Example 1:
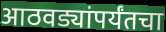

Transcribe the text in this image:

आठवड्यांपर्यंतचा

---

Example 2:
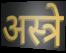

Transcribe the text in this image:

अस्त्रे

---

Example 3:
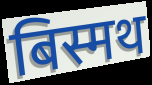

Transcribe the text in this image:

बिस्मथ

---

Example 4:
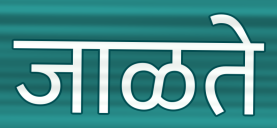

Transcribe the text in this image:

जाळते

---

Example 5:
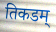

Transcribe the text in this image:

तिकडम्